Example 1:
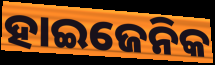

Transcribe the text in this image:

ହାଇଜେନିକ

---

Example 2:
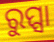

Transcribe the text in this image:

ରୁପ୍ସା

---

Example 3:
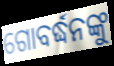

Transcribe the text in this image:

ଗୋବର୍ଦ୍ଧନଙ୍କୁ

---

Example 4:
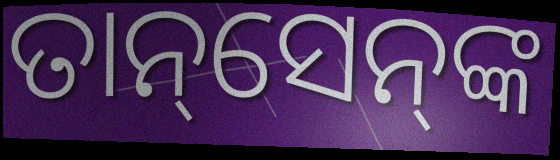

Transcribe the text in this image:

ତାନ୍‌ସେନ୍‌ଙ୍କ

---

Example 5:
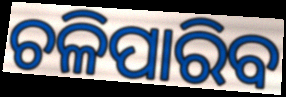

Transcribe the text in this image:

ଚଳିପାରିବ